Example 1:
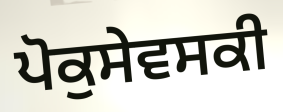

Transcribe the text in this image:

ਪੋਕੁਸੇਵਸਕੀ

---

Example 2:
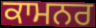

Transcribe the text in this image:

ਕਾਮਨਰ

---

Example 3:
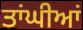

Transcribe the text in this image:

ਤਾਂਘੀਆਂ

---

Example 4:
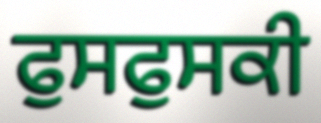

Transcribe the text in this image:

ਫੁਸਫੁਸਕੀ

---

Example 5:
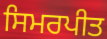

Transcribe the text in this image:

ਸਿਮਰਪੀਤ